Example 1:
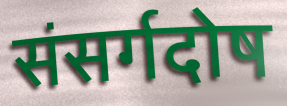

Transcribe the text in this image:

संसर्गदोष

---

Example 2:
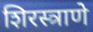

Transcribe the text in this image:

शिरस्त्राणे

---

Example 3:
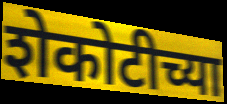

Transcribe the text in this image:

शेकोटीच्या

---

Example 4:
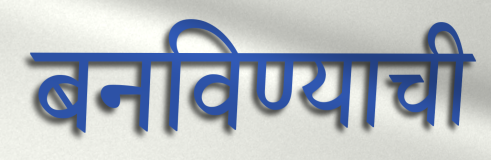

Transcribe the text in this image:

बनविण्याची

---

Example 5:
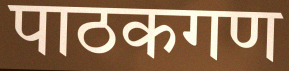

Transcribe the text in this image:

पाठकगण